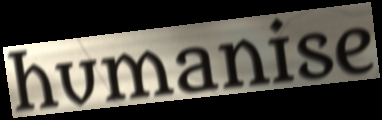
humanise